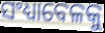
ସଂଧ୍ୟାବେଳକୁ